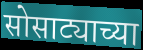
सोसाट्याच्या